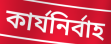
কাৰ্যনিৰ্বাহ